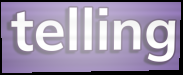
telling